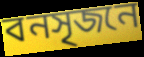
বনসৃজনে